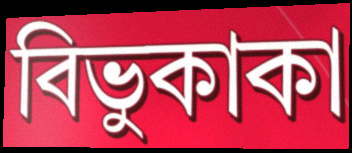
বিভুকাকা